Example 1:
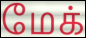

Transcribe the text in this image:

மேக்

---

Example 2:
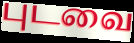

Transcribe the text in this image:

புடவை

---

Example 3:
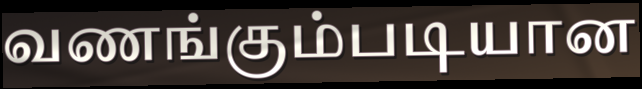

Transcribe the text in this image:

வணங்கும்படியான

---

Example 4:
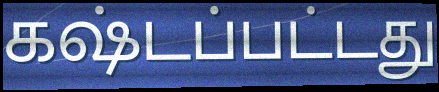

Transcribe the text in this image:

கஷ்டப்பட்டது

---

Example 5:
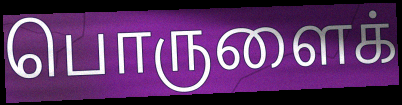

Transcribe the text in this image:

பொருளைக்